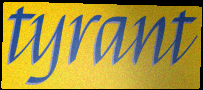
tyrant